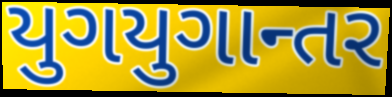
યુગયુગાન્તર